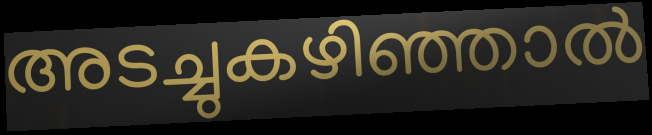
അടച്ചുകഴിഞ്ഞാൽ